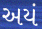
અયં